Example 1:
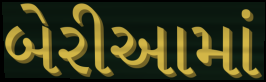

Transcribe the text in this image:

બેરીઆમાં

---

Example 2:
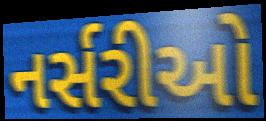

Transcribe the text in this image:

નર્સરીઓ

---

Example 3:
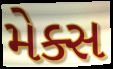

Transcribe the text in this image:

મેક્સ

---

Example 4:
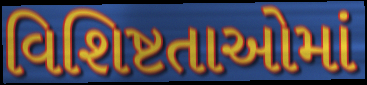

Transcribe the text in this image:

વિશિષ્ટતાઓમાં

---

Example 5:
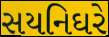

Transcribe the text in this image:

સયનિઘરે